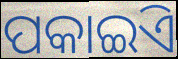
ପକାଇିଏ